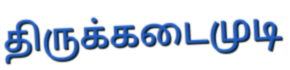
திருக்கடைமுடி